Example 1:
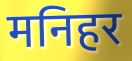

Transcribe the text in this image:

मनिहर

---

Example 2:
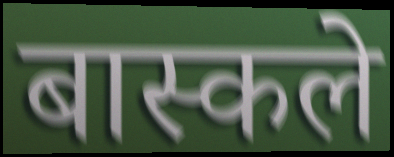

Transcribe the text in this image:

बास्कले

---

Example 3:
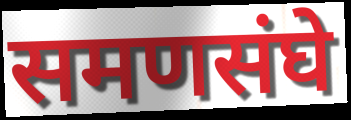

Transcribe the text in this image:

समणसंघे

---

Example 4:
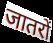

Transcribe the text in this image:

जातरों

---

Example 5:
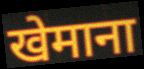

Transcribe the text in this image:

खेमाना